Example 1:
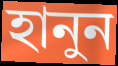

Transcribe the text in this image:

হানুন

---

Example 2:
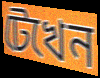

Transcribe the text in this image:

টেখেন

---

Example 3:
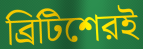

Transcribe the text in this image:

ব্রিটিশেরই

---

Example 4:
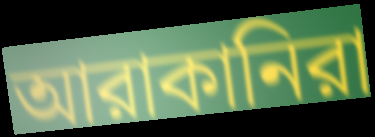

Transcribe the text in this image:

আরাকানিরা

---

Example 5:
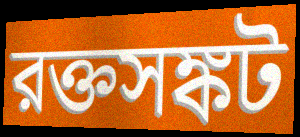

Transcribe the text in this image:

রক্তসঙ্কট